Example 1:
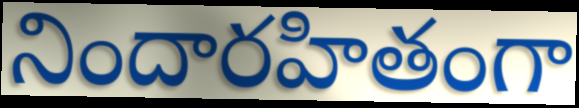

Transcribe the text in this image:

నిందారహితంగా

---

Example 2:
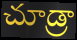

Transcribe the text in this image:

చూడ్రా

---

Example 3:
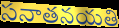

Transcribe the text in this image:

సనాతనయతి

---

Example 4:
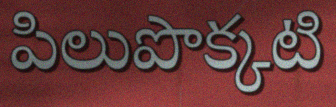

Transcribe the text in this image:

పిలుపొక్కటి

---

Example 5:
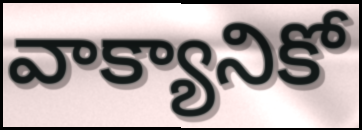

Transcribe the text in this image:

వాక్యానికో